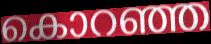
കൊറഞ്ഞ